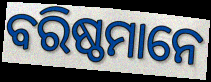
ବରିଷ୍ଠମାନେ